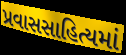
પ્રવાસસાહિત્યમાં